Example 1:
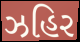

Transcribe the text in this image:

ઝહિર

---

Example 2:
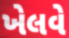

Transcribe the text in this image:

ખેલવે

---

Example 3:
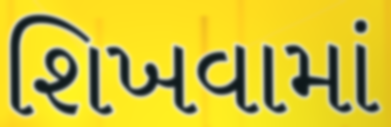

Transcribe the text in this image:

શિખવામાં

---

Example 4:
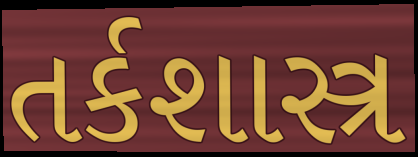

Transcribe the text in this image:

તર્કશાસ્ત્ર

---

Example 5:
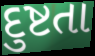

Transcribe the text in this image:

દુષ્ટતા